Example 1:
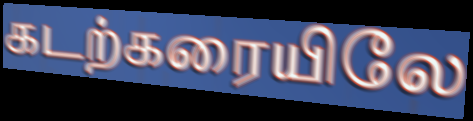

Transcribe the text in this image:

கடற்கரையிலே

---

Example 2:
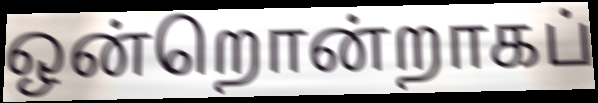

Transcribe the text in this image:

ஒன்றொன்றாகப்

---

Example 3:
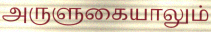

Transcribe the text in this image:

அருளுகையாலும்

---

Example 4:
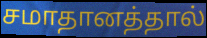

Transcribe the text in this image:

சமாதானத்தால்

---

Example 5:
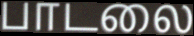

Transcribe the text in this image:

பாடலை